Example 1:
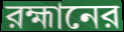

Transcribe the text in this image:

রহ্মানের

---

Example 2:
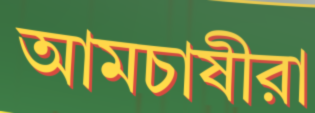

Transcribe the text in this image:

আমচাষীরা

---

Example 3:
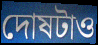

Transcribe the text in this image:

দোষটাও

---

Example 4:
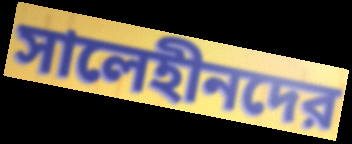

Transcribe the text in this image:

সালেহীনদের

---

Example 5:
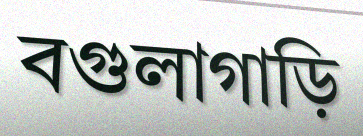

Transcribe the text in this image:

বগুলাগাড়ি